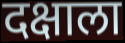
दक्षाला